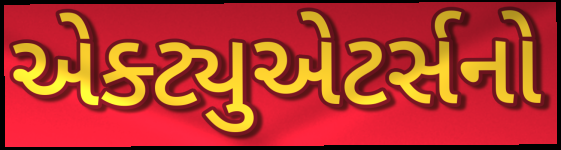
એક્ટ્યુએટર્સનો